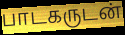
பாடகருடன்